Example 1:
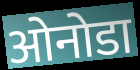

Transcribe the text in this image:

ओनोडा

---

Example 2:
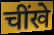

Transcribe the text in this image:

चींखे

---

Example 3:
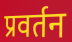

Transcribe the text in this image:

प्रवर्तन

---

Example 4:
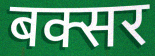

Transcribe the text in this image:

बक्सर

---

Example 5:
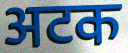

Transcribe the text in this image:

अटक